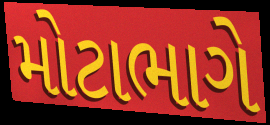
મોટાભાગે